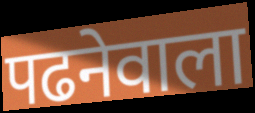
पढनेवाला